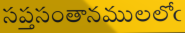
సప్తసంతానములలోఁ